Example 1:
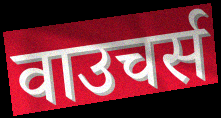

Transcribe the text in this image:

वाउचर्स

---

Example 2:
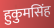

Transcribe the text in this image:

हुकुमसिंह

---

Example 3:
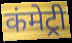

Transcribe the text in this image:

कंमेट्री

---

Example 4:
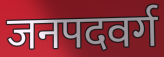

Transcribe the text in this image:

जनपदवर्ग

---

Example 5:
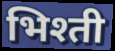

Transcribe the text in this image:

भिश्ती